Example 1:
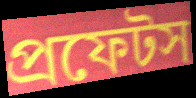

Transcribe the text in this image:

প্রফেটস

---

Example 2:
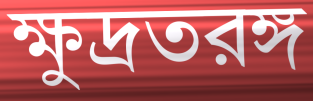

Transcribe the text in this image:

ক্ষুদ্রতরঙ্গ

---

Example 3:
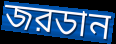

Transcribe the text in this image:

জরডান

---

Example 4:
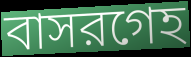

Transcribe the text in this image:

বাসরগেহ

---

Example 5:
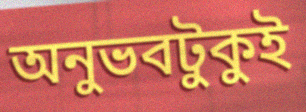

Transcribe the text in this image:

অনুভবটুকুই